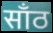
साँठ